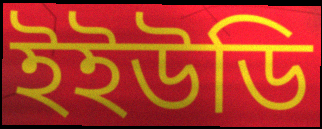
ইইউডি